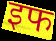
इफ